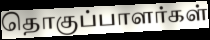
தொகுப்பாளர்கள்